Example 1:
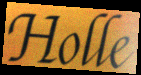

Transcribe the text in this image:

Holle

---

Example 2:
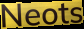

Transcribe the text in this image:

Neots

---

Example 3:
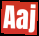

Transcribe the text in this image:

Aaj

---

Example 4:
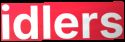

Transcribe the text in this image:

idlers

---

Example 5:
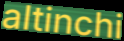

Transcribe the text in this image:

altinchi